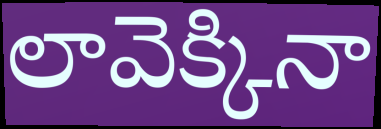
లావెక్కినా